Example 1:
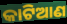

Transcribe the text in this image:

କାଟିଆଣ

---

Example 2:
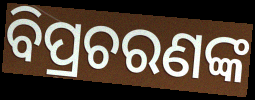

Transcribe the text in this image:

ବିପ୍ରଚରଣଙ୍କ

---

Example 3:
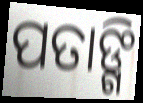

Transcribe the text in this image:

ପତାଙ୍ଗି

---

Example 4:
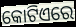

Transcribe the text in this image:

କୋଟିଏରେ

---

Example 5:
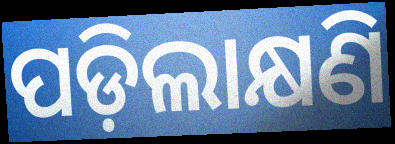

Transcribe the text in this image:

ପଡ଼ିଲାକ୍ଷଣି